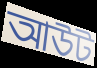
আউট